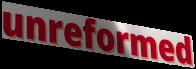
unreformed